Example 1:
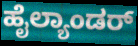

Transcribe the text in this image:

ಹೈಲ್ಯಾಂಡರ್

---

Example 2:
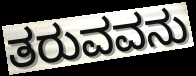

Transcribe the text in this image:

ತರುವವನು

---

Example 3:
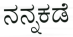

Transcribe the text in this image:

ನನ್ನಕಡೆ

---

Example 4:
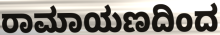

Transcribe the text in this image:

ರಾಮಾಯಣದಿಂದ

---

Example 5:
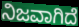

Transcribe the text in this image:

ನಿಜವಾಗಿದೆ